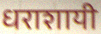
धराशायी